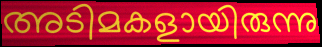
അടിമകളായിരുന്നു